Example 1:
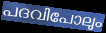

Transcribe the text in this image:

പദവിപോലും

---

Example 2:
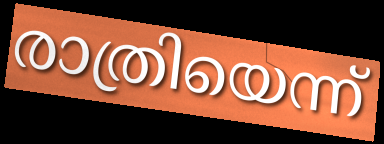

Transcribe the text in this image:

രാത്രിയെന്ന്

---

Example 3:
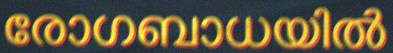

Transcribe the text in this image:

രോഗബാധയിൽ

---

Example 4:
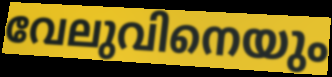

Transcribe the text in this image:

വേലുവിനെയും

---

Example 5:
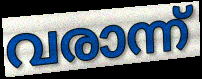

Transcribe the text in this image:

വരാന്ന്